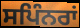
ਸਪਿੰਨਰਾਂ